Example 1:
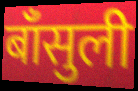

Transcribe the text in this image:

बाँसुली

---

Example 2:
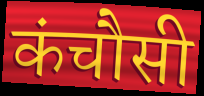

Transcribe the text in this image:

कंचौसी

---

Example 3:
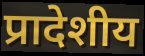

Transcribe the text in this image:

प्रादेशीय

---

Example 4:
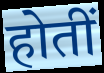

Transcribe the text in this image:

होतीं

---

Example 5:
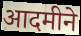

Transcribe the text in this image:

आदमीने